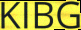
KIBG